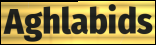
Aghlabids